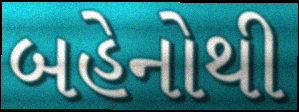
બહેનોથી